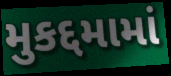
મુકદ્દમામાં